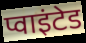
प्वाइंटेड